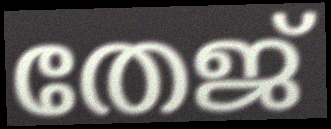
തേജ്